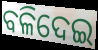
ବଳିଦେଇ